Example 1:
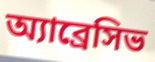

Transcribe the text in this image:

অ্যাব্রেসিভ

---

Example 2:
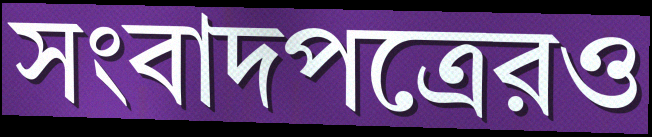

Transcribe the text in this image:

সংবাদপত্রেরও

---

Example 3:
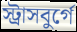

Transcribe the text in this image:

স্ট্রাসবুর্গে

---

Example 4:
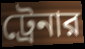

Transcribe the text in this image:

ট্রেনার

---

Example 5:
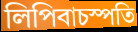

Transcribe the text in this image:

লিপিবাচস্পতি